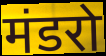
मंडरो